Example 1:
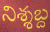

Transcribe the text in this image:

నిశ్శబ్ద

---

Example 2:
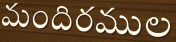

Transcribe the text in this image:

మందిరముల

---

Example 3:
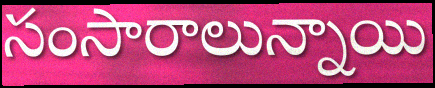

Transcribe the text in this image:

సంసారాలున్నాయి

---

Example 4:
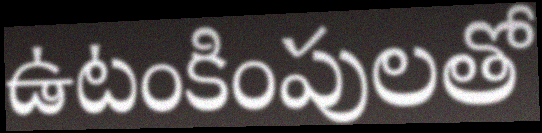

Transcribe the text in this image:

ఉటంకింపులతో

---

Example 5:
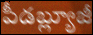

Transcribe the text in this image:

పీడబ్ల్యూజీ